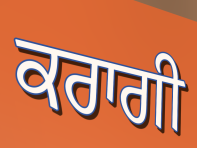
ਕਰਾਗੀ